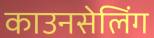
काउनसेलिंग